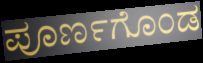
ಪೂರ್ಣಗೊಂಡ